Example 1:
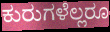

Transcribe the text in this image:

ಕುರುಗಳೆಲ್ಲರೂ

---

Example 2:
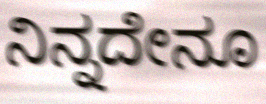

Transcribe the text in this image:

ನಿನ್ನದೇನೂ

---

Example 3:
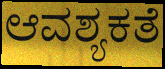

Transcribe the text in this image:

ಆವಶ್ಯಕತೆ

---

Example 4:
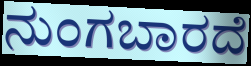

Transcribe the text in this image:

ನುಂಗಬಾರದೆ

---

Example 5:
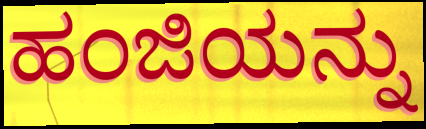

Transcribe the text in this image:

ಹಂಜಿಯನ್ನು